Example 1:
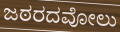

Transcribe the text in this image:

ಜಠರದವೋಲು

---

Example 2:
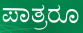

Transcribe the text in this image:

ಪಾತ್ರರೂ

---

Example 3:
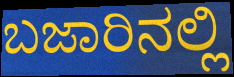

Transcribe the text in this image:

ಬಜಾರಿನಲ್ಲಿ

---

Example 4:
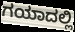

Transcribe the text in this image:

ಗಯಾದಲ್ಲಿ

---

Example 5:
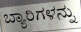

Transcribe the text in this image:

ಬ್ಯಾರಿಗಳನ್ನು